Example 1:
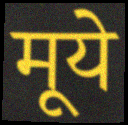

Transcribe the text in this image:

मूये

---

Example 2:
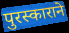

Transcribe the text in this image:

पुरस्काराने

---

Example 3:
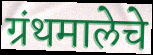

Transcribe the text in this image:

ग्रंथमालेचे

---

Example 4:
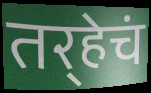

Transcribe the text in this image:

तर्‍हेचं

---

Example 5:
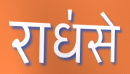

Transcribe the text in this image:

राध॑से